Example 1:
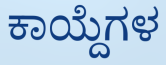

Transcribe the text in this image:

ಕಾಯ್ದೆಗಳ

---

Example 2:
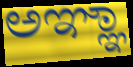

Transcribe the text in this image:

ಅಞ್ಞಾ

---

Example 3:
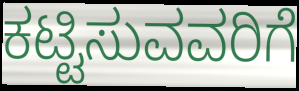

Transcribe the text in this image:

ಕಟ್ಟಿಸುವವರಿಗೆ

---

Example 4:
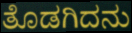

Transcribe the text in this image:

ತೊಡಗಿದನು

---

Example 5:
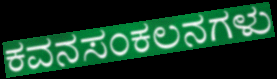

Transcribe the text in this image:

ಕವನಸಂಕಲನಗಳು